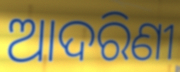
ଆଦରିଣୀ